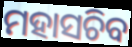
ମହାସଚିବ